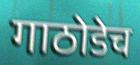
गाठोडेच